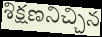
శిక్షణనిచ్చిన